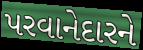
પરવાનેદારને